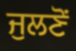
ਜੁਲਣੋਂ